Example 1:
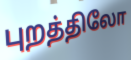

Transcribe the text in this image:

புறத்திலோ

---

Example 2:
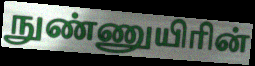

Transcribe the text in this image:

நுண்ணுயிரின்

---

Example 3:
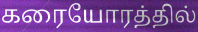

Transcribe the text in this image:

கரையோரத்தில்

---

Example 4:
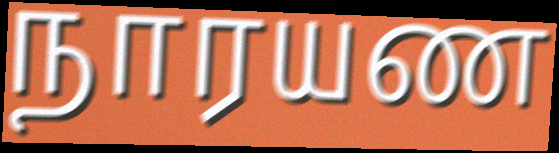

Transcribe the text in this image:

நாரயண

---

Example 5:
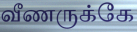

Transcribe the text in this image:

வீணருக்கே